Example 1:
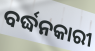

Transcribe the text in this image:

ବର୍ଦ୍ଧନକାରୀ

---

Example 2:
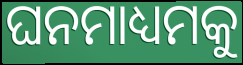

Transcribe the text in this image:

ଘନମାଧ୍ୟମକୁ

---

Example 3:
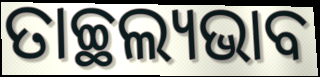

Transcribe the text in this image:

ତାଚ୍ଛଲ୍ୟଭାବ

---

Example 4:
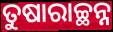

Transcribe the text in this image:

ତୁଷାରାଚ୍ଛନ୍ନ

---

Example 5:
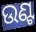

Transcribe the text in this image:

ଉଣ୍ଟ